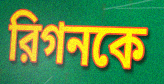
রিগনকে